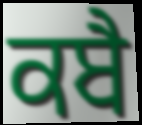
ਕਬੈ